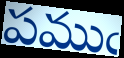
పముఁ